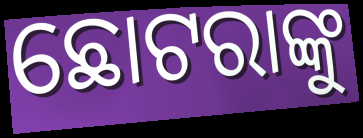
ଛୋଟରାଙ୍କୁ